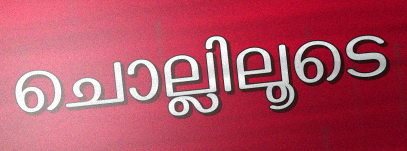
ചൊല്ലിലൂടെ